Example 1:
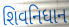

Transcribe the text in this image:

શિવનિધાન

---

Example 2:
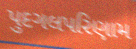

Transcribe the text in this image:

પુદગલપરિણામ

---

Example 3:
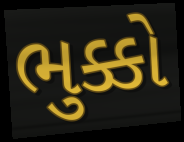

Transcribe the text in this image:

ભુક્કો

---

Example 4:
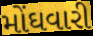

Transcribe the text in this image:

મોંઘવારી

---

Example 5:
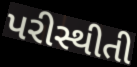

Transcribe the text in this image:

પરીસ્થીતી